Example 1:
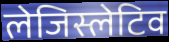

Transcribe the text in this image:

लेजिस्लेटिव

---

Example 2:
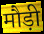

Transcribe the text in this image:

मौड़ी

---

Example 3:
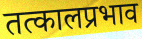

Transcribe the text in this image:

तत्कालप्रभाव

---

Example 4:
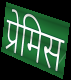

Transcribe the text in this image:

प्रेमिस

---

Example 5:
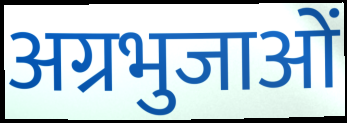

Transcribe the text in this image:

अग्रभुजाओं